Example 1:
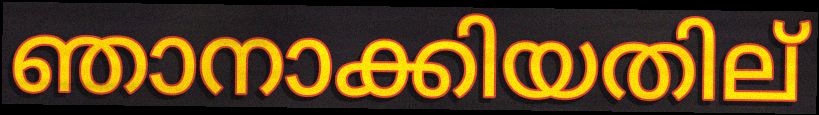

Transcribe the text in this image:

ഞാനാക്കിയതില്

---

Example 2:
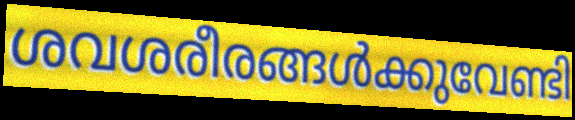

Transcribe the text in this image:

ശവശരീരങ്ങൾക്കുവേണ്ടി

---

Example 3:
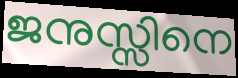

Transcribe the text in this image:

ജനുസ്സിനെ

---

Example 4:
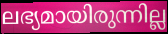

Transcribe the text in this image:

ലഭ്യമായിരുന്നില്ല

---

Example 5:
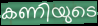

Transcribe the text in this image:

കണിയുടെ